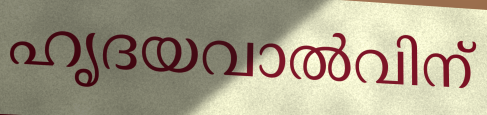
ഹൃദയവാൽവിന്